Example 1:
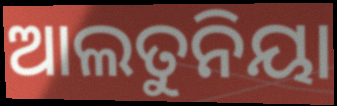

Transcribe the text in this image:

ଆଲତୁନିୟା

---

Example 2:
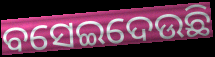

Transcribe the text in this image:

ବସେଇଦେଉଛି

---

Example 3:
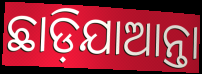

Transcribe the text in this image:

ଛାଡ଼ିଯାଆନ୍ତା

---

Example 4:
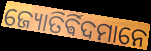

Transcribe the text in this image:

ଜ୍ୟୋତିର୍ଵିଦମାନେ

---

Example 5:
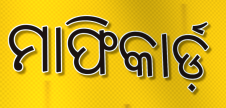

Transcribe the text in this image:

ମାଫିକାର୍ଡ଼